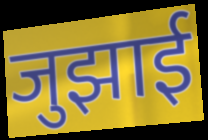
जुझाई